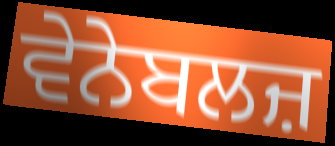
ਵੇਨੇਬਲਜ਼